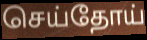
செய்தோய்